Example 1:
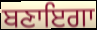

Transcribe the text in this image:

ਬਣਾਇਗਾ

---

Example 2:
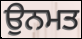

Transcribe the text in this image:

ਉਨਮਤ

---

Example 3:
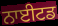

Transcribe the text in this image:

ਨਾਈਟਡ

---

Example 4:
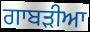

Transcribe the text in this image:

ਗਾਬੜੀਆ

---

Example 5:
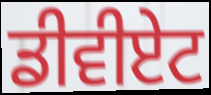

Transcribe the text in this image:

ਡੀਵੀਏਟ